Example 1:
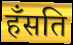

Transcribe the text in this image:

हँसति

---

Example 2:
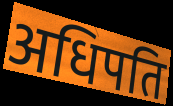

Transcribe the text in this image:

अधिपति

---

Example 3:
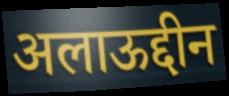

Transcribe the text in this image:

अलाऊद्दीन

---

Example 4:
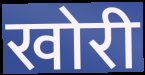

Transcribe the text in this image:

खोरी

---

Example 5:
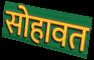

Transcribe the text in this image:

सोहावत